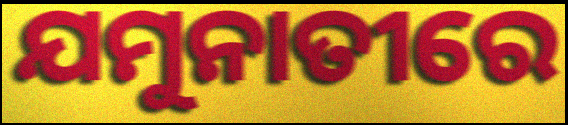
ଯମୁନାତୀରେ